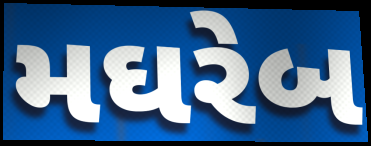
મઘરેબ